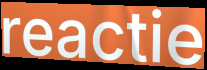
reactie